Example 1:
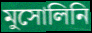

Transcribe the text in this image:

মুসোলিনি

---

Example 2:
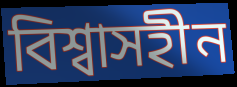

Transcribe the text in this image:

বিশ্বাসহীন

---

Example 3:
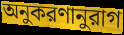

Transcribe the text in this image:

অনুকরণানুরাগ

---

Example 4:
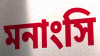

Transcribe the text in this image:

মনাংসি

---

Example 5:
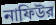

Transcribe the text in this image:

নাফিউর